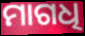
ମାଗଧି